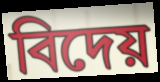
বিদেয়